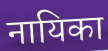
नायिका